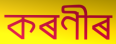
কৰণীৰ